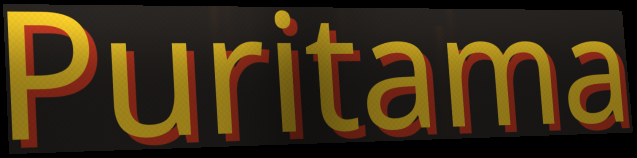
Puritama